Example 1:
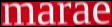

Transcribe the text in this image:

marae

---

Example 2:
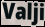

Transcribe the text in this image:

Valji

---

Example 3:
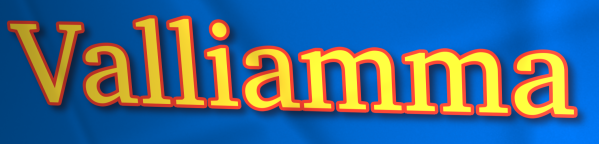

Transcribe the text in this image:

Valliamma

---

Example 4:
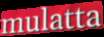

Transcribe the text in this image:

mulatta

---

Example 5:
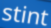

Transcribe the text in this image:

stint